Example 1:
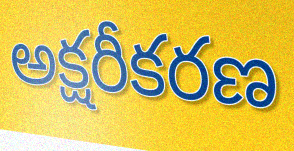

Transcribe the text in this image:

అక్షరీకరణ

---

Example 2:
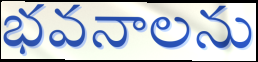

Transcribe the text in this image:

భవనాలను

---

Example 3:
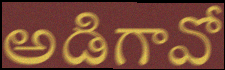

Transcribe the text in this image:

అడిగావో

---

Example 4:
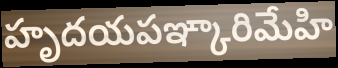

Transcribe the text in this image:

హృదయపఞ్కారిమేహి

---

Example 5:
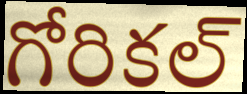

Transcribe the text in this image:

గోరికల్